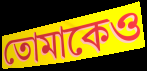
তোমাকেও